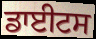
ਡਾਈਟਸ